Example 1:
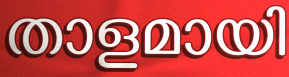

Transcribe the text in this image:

താളമായി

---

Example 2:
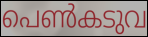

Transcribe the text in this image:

പെൺകടുവ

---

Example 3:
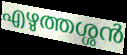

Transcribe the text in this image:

എഴുത്തശ്ശൻ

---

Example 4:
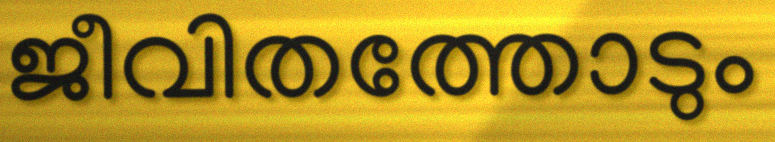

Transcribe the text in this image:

ജീവിതത്തോടും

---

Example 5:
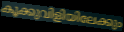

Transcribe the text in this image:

കൂക്കുവിളിയിലേക്കും